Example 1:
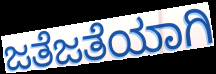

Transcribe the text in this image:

ಜತೆಜತೆಯಾಗಿ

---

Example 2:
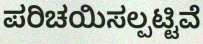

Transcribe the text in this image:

ಪರಿಚಯಿಸಲ್ಪಟ್ಟಿವೆ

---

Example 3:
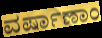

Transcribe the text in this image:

ವರ್ಷಾಣಾಂ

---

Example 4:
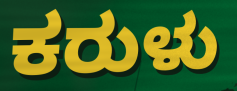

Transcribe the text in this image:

ಕರುಳು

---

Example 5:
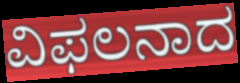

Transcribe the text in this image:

ವಿಫಲನಾದ